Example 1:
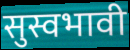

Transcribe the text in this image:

सुस्वभावी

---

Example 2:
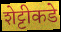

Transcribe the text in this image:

शेट्टीकडे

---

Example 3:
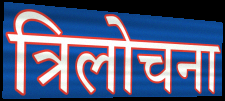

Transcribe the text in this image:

त्रिलोचना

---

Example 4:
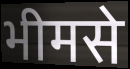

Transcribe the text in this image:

भीमसे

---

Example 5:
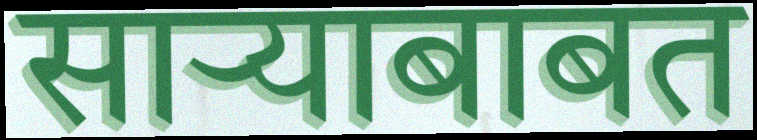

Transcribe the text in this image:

साऱ्याबाबत